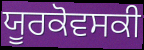
ਯੂਰਕੋਵਸਕੀ